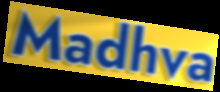
Madhva